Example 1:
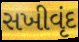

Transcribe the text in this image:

સખીવૃંદ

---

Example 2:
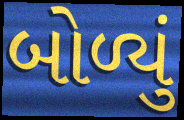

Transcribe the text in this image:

બોળ્યું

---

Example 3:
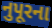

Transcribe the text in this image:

નુપૂરના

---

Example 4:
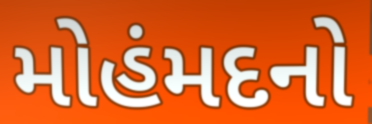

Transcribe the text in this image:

મોહંમદનો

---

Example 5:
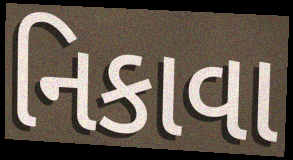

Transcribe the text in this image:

નિકાવા